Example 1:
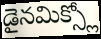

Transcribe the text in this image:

డైనమిక్స్లో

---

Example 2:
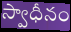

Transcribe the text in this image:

స్వాధీనం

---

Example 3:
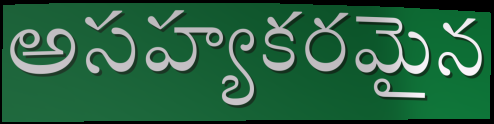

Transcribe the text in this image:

అసహ్యకరమైన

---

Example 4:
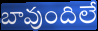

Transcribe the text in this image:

బావుందిలే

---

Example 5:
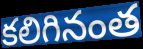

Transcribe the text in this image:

కలిగినంత